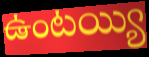
ఉంటయ్యి